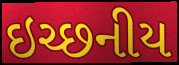
ઇચ્છનીય